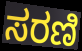
ಸರಣಿ